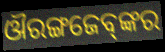
ଔରଙ୍ଗଜେବ୍‌ଙ୍କର